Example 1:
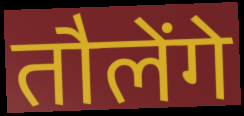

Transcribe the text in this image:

तौलेंगे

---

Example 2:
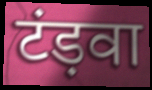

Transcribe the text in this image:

टंड़वा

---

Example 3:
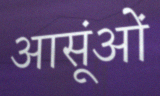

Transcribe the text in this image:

आसूंओं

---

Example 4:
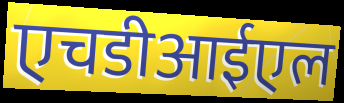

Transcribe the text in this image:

एचडीआईएल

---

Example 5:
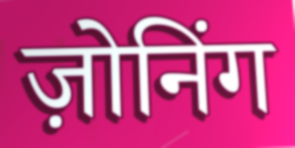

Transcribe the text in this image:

ज़ोनिंग